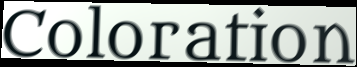
Coloration